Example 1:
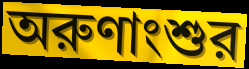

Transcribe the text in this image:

অরুণাংশুর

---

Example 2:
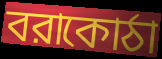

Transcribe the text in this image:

বরাকোঠা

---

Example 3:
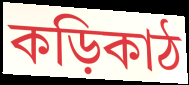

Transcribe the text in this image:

কড়িকাঠ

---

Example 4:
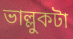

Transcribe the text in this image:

ভাল্লুকটা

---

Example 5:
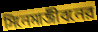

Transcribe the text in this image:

সিনেমাজীবনের